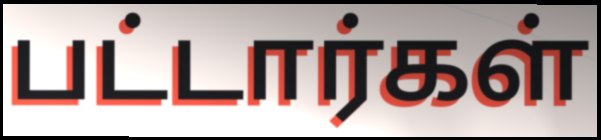
பட்டார்கள்